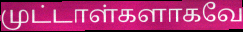
முட்டாள்களாகவே